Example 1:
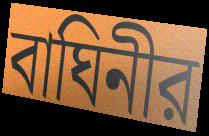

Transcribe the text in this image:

বাঘিনীর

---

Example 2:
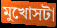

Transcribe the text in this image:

মুখোসটা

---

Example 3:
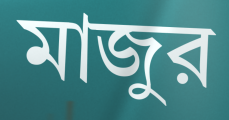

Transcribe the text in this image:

মাজুর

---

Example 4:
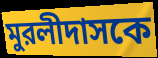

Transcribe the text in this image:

মুরলীদাসকে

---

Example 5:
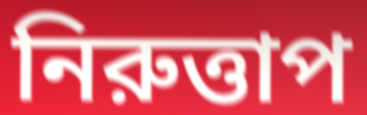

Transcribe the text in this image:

নিরুত্তাপ